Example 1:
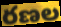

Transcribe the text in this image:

రణల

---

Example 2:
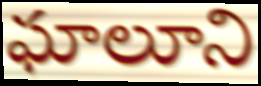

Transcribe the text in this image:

ఘాలూని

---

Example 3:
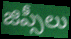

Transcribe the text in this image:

జిప్సీలు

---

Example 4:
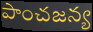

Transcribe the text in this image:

పాంచజన్య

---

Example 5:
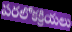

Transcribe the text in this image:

పరలోకక్రియలు